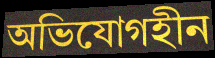
অভিযোগহীন